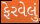
ફેરવેલું